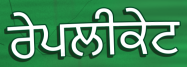
ਰੇਪਲੀਕੇਟ